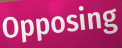
Opposing